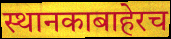
स्थानकाबाहेरच